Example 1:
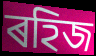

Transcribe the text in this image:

ৰহিজ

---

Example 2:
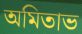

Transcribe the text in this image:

অমিতাভ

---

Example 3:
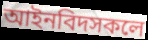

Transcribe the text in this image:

আইনবিদসকলে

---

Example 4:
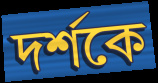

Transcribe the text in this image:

দৰ্শকে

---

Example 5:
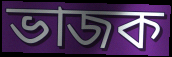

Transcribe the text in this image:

ভাজক